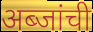
अब्जांची